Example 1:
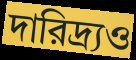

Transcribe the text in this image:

দারিদ্র্যও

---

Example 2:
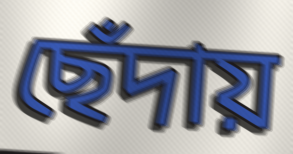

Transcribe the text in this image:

ছেঁদায়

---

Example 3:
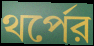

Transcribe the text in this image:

থর্পের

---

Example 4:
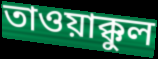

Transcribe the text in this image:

তাওয়াক্কুল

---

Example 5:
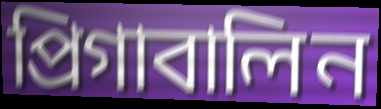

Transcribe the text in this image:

প্রিগাবালিন